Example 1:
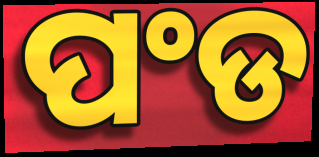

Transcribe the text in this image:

ପଂଡ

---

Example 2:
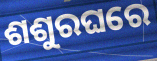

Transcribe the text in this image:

ଶଶୁରଘରେ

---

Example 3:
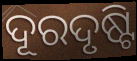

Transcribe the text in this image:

ଦୂରଦୃଷ୍ଟି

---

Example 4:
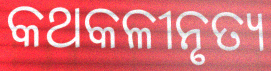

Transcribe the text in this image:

କଥକଳୀନୃତ୍ୟ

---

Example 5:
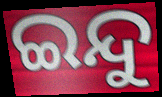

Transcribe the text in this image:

ଇନ୍ଦୁ